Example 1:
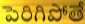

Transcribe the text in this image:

పెరిగిపోతే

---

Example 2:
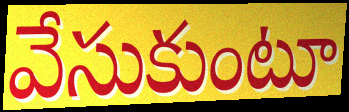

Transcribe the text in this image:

వేసుకుంటూ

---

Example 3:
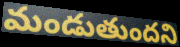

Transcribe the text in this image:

మండుతుందని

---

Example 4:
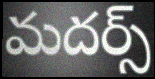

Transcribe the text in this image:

మదర్స్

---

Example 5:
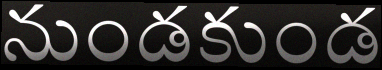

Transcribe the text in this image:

నుండకుండ